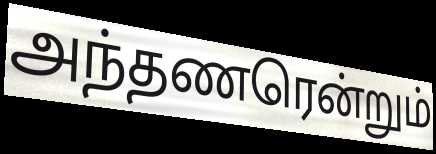
அந்தணரென்றும்